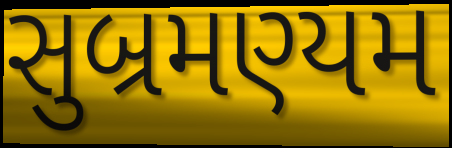
સુબ્રમણ્યમ